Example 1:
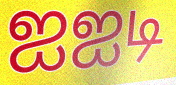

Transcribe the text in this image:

ஐஐடி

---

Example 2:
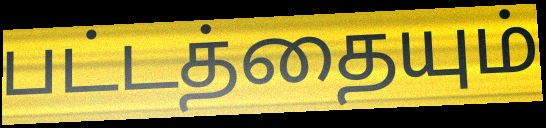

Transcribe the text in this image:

பட்டத்தையும்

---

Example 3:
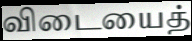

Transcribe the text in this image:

விடையைத்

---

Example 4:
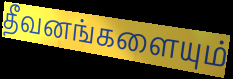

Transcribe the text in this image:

தீவனங்களையும்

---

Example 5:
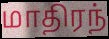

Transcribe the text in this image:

மாதிரந்